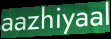
aazhiyaal